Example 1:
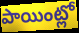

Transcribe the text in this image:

పాయింట్లో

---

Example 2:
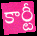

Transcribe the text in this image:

కార్టీ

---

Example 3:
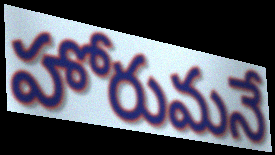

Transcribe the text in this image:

హోరుమనే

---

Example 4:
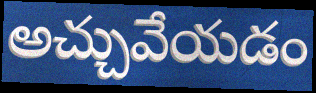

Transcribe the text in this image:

అచ్చువేయడం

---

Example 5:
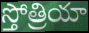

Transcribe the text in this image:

స్తోత్రియా